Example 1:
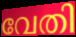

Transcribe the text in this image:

വേതി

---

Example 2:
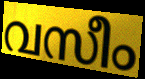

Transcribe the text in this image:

വസീം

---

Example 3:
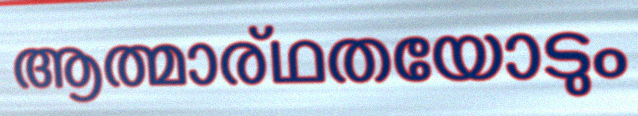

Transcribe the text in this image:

ആത്മാര്ഥതയോടും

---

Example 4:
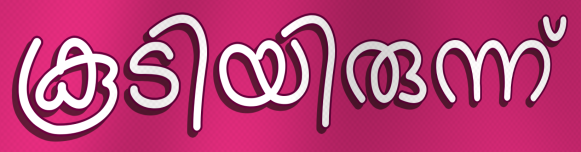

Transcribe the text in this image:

കൂടിയിരുന്ന്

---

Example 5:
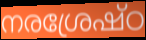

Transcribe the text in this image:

നരശ്രേഷ്ഠ